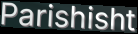
Parishisht